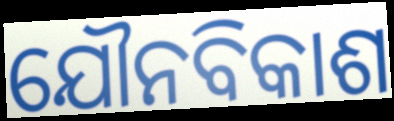
ଯୌନବିକାଶ